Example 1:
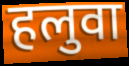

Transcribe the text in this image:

हलुवा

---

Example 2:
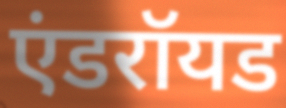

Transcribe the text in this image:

एंडरॉयड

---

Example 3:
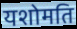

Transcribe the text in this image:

यशोमति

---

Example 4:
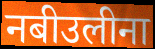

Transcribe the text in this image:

नबीउलीना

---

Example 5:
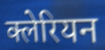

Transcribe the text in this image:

क्लेरियन